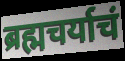
ब्रह्मचर्याचं